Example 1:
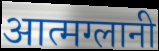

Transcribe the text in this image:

आत्मग्लानी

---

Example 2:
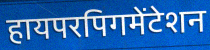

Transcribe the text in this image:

हायपरपिगमेंटेशन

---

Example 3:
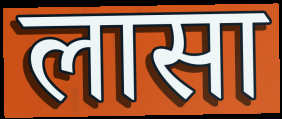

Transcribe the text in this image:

लासा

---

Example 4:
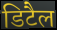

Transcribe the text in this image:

डिटैल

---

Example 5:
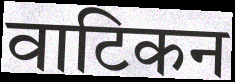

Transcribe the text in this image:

वाटिकन